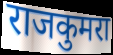
राजकुमरा